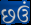
છઉં